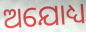
ଅଯୋଧ୍ୟ